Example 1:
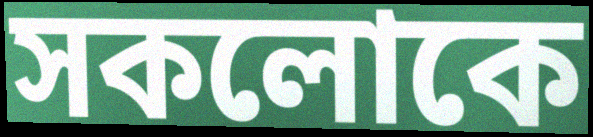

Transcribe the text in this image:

সকলোকে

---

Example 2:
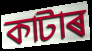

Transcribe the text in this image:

কাটাৰ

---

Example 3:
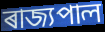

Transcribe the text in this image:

ৰাজ্যপাল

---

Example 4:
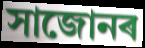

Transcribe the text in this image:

সাজোনৰ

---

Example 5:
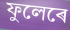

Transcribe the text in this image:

ফুলেৰে